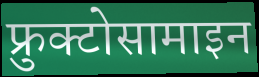
फ्रुक्टोसामाइन